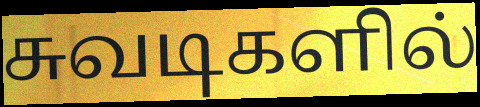
சுவடிகளில்